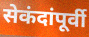
सेकंदांपूर्वी